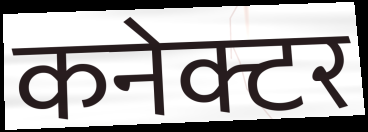
कनेक्टर